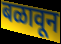
बळावून